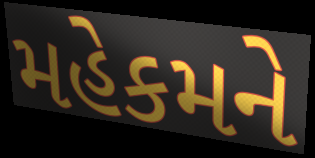
મહેકમને